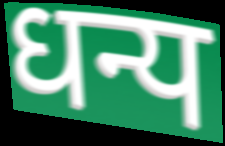
धन्य